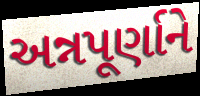
અન્નપૂર્ણાને